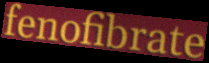
fenofibrate